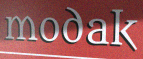
modak